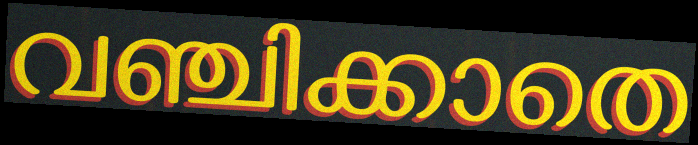
വഞ്ചിക്കാതെ